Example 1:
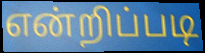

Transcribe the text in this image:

என்றிப்படி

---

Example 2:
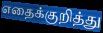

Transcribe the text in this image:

எதைக்குறித்து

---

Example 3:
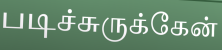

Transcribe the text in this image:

படிச்சுருக்கேன்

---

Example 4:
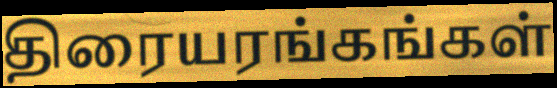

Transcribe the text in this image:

திரையரங்கங்கள்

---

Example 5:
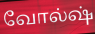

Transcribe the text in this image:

வோல்ஷ்